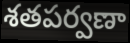
శతపర్వణా